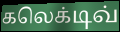
கலெக்டிவ்